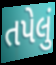
તપેલું